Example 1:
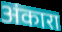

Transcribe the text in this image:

अंकारा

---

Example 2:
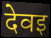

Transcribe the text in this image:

देवइ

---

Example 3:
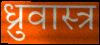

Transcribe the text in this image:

ध्रुवास्त्र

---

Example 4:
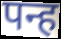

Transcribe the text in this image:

पन्ह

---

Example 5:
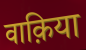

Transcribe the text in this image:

वाक़िया